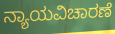
ನ್ಯಾಯವಿಚಾರಣೆ